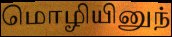
மொழியினுந்